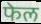
फेल